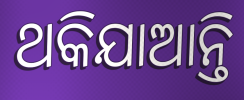
ଥକିଯାଆନ୍ତି